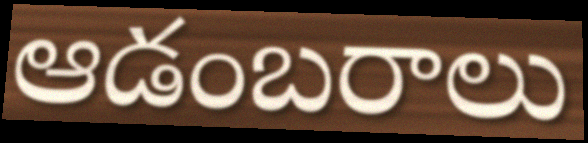
ఆడంబరాలు